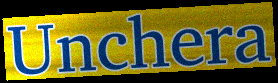
Unchera